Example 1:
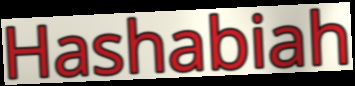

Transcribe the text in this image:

Hashabiah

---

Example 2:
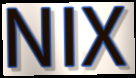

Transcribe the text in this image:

NIX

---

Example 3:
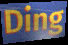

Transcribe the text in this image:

Ding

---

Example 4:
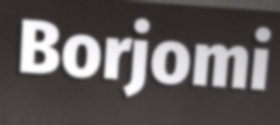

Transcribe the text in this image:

Borjomi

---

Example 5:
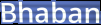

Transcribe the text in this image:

Bhaban